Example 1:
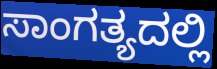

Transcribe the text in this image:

ಸಾಂಗತ್ಯದಲ್ಲಿ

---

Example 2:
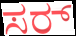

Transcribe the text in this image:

ಸರ‍್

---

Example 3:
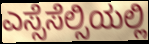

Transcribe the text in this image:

ಎಸ್ಸೆಸೆಲ್ಸಿಯಲ್ಲಿ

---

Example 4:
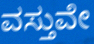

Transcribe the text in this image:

ವಸ್ತುವೇ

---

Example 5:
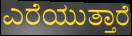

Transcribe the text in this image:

ಎರೆಯುತ್ತಾರೆ